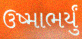
ઉષ્માભર્યું